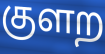
குளற